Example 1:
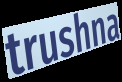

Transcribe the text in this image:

trushna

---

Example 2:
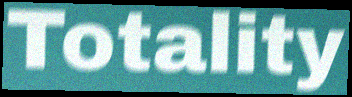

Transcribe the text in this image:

Totality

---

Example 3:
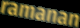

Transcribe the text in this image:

ramanan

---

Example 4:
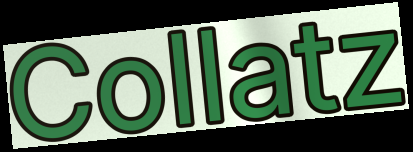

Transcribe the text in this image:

Collatz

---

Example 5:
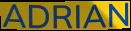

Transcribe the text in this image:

ADRIAN